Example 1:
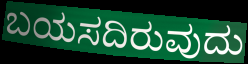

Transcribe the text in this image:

ಬಯಸದಿರುವುದು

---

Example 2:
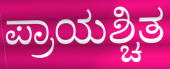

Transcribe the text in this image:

ಪ್ರಾಯಶ್ಚಿತ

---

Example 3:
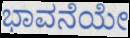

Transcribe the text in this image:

ಭಾವನೆಯೇ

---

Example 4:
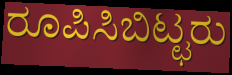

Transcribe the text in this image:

ರೂಪಿಸಿಬಿಟ್ಟರು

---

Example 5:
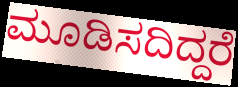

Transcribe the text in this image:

ಮೂಡಿಸದಿದ್ದರೆ